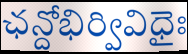
ఛన్దోభిర్వివిధైః